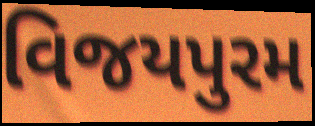
વિજયપુરમ